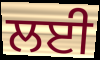
ਲਈ